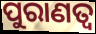
ପୁରାଣତ୍ୱ